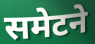
समेटने